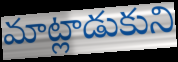
మాట్లాడుకుని